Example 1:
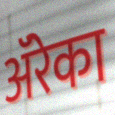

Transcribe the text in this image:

ॲरेका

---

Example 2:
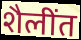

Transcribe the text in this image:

शैलींत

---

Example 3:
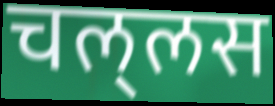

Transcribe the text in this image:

चल्लस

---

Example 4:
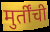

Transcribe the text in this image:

मुर्तींची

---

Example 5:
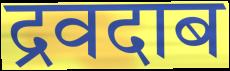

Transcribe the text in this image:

द्रवदाब